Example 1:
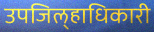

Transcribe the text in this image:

उपजिल्हाधिकारी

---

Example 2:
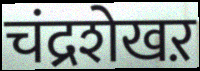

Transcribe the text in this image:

चंद्रशेखऱ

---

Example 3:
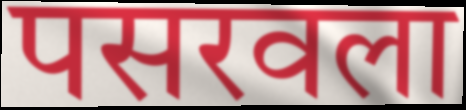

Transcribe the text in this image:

पसरवला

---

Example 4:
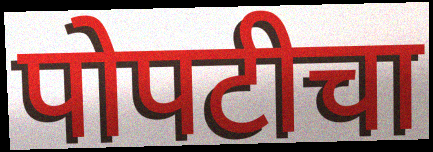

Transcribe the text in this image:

पोपटीचा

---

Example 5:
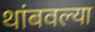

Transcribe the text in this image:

थांबवल्या